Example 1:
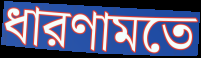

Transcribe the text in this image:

ধারণামতে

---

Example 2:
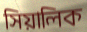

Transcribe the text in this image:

সিয়ালিক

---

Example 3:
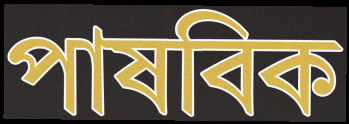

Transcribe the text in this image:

পাষবিক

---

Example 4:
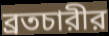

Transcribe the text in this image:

ব্রতচারীর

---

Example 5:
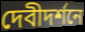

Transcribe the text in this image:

দেবীদর্শনে